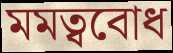
মমত্ববোধ